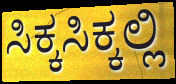
ಸಿಕ್ಕಸಿಕ್ಕಲ್ಲಿ